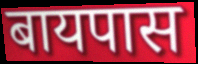
बायपास